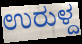
ಉರುಳ್ದ